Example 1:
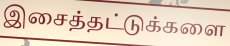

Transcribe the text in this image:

இசைத்தட்டுக்களை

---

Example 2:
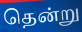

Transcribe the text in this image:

தென்று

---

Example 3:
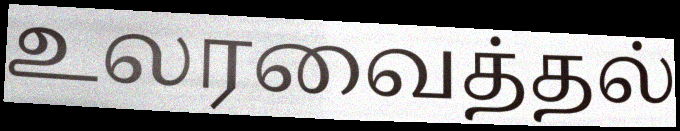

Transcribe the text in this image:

உலரவைத்தல்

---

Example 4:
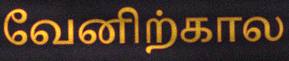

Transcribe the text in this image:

வேனிற்கால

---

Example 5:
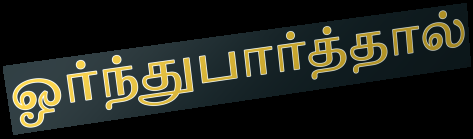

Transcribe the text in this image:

ஓர்ந்துபார்த்தால்